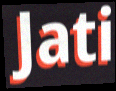
Jati